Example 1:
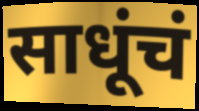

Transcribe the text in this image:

साधूंचं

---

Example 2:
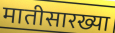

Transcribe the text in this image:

मातीसारख्या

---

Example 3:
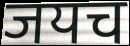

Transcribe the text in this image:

जयच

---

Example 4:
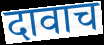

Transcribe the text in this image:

दावाच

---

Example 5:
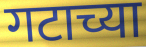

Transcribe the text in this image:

गटाच्या